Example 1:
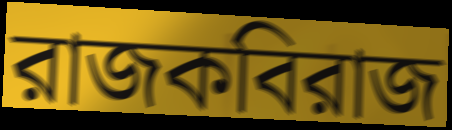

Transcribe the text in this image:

রাজকবিরাজ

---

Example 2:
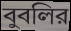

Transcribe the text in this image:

বুবলির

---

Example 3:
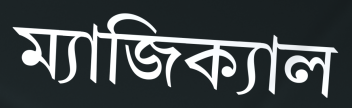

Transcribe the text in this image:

ম্যাজিক্যাল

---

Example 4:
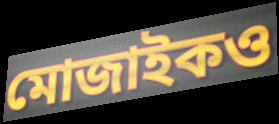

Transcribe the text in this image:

মোজাইকও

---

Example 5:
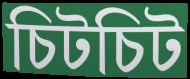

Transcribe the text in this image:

চিটচিট